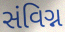
સંવિગ્ન